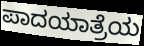
ಪಾದಯಾತ್ರೆಯ